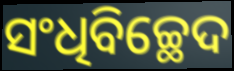
ସଂଧିବିଚ୍ଛେଦ